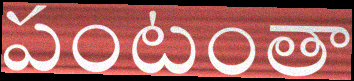
పంటంతా